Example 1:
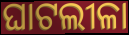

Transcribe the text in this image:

ଘାଟଲୀଳା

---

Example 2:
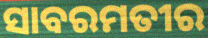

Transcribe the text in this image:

ସାବରମତୀର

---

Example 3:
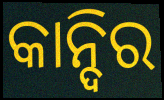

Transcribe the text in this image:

କାନ୍ଦିର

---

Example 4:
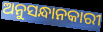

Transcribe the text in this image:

ଅନୁସନ୍ଧାନକାରୀ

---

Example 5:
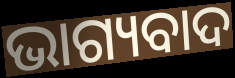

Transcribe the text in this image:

ଭାଗ୍ୟବାଦ